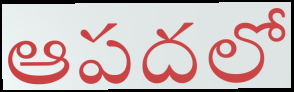
ఆపదలో